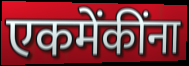
एकमेंकींना